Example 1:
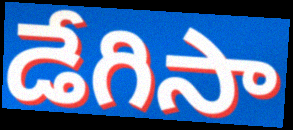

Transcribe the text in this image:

డేగిసా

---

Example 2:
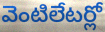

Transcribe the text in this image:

వెంటిలేటర్లో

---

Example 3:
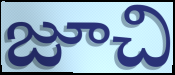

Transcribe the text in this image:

జూచి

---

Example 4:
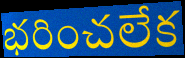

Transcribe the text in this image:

భరించలేక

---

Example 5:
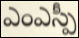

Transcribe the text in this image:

ఎంఎస్పీ